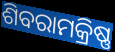
ଶିବରାମକ୍ରିଷ୍ଣ